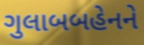
ગુલાબબહેનને